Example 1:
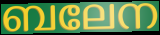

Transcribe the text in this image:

ബലേന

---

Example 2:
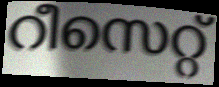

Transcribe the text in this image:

റീസെറ്റ്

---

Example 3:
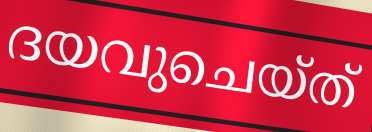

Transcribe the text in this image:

ദയവുചെയ്ത്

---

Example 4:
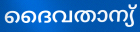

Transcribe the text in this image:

ദൈവതാന്യ്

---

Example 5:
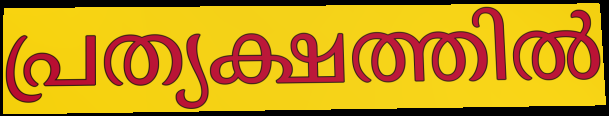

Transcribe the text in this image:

പ്രത്യക്ഷത്തിൽ